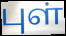
புள்